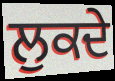
ਲੁਕਦੇ